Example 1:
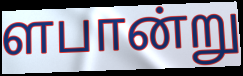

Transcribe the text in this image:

ளபான்று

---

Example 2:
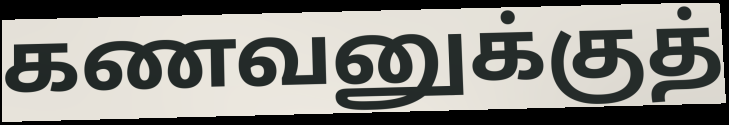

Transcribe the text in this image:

கணவனுக்குத்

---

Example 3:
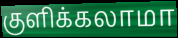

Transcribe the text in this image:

குளிக்கலாமா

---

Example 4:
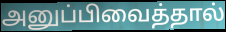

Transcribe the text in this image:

அனுப்பிவைத்தால்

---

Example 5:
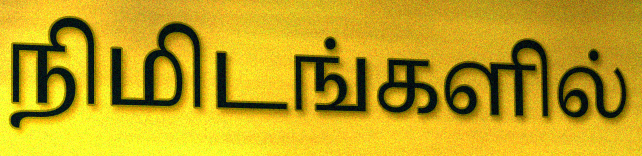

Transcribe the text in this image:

நிமிடங்களில்